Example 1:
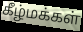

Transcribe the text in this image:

கீழ்மக்கள்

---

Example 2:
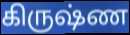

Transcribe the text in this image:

கிருஷ்ண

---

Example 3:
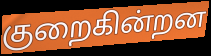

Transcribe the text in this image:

குறைகின்றன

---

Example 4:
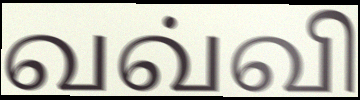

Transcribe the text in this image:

வவ்வி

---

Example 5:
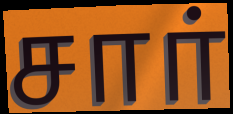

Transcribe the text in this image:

சார்